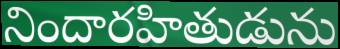
నిందారహితుడును